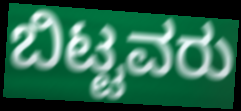
ಬಿಟ್ಟವರು